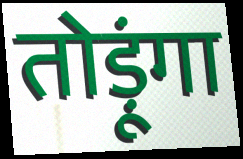
तोड़ूंगा